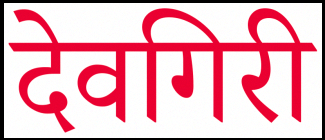
देवगिरी